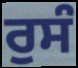
ਰੁਸੰ